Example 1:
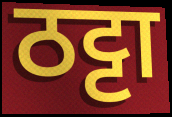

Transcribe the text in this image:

ठट्टा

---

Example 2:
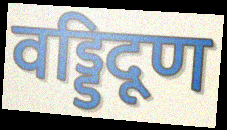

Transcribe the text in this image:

वड्डिदूण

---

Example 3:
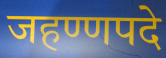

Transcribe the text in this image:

जहण्णपदे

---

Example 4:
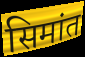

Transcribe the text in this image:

सिमांत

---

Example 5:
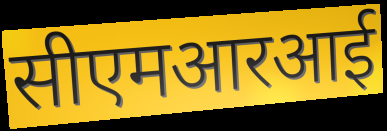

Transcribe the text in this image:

सीएमआरआई